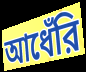
আধেঁরি